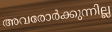
അവരോർക്കുന്നില്ല